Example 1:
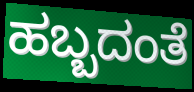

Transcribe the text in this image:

ಹಬ್ಬದಂತೆ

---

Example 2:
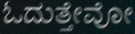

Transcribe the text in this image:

ಓದುತ್ತೇವೋ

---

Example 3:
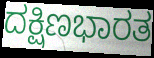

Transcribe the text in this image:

ದಕ್ಷಿಣಭಾರತ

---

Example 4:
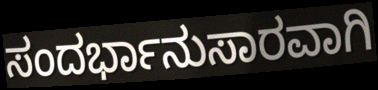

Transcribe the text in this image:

ಸಂದರ್ಭಾನುಸಾರವಾಗಿ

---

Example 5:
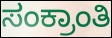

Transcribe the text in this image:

ಸಂಕ್ರಾಂತಿ